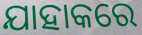
ଯାହାକରେ